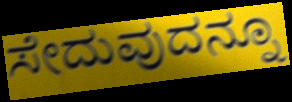
ಸೇದುವುದನ್ನೂ